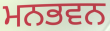
ਮਨਭਵਨ